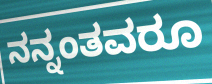
ನನ್ನಂತವರೂ